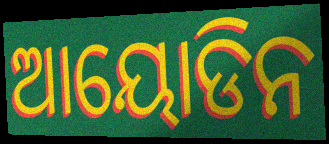
ଆୟୋଡିନ